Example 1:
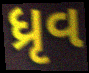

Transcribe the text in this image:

ધ્રૃવ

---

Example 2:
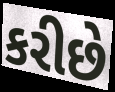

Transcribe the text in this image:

કરીછે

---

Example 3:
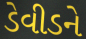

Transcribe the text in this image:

ડેવીડને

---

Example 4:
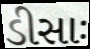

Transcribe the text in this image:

ડીસાઃ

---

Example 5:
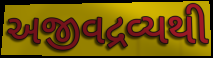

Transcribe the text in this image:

અજીવદ્રવ્યથી